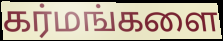
கர்மங்களை